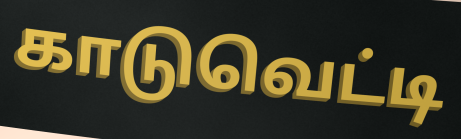
காடுவெட்டி